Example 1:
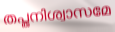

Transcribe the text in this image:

തപ്തനിശ്വാസമേ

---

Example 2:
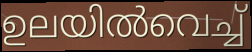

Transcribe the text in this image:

ഉലയിൽവെച്ച്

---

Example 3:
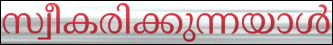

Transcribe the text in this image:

സ്വീകരിക്കുന്നയാൾ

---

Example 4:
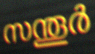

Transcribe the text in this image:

സന്തൂർ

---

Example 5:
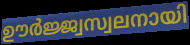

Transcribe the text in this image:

ഊർജ്ജ്വസ്വലനായി